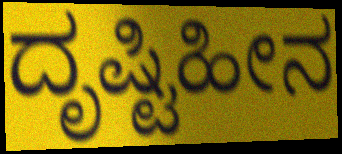
ದೃಷ್ಟಿಹೀನ